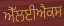
ਐੱਲਈਐਕਸ